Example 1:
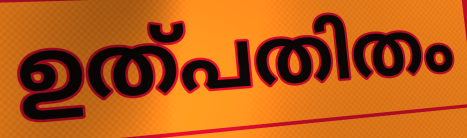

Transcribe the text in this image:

ഉത്പതിതം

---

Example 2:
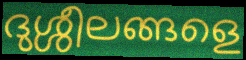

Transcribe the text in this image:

ദുശ്ശീലങ്ങളെ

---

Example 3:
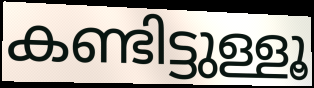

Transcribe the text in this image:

കണ്ടിട്ടുള്ളൂ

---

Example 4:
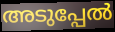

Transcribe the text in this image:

അടുപ്പേൽ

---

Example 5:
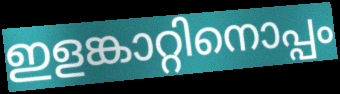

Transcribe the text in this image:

ഇളങ്കാറ്റിനൊപ്പം